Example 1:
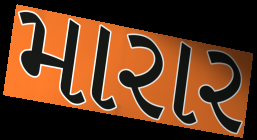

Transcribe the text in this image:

મારાર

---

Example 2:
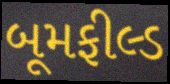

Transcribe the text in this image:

બૂમફીલ્ડ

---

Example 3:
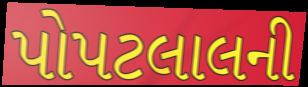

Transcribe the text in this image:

પોપટલાલની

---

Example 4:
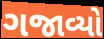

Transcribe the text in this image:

ગજાવ્યો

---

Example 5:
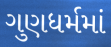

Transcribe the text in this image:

ગુણધર્મમાં